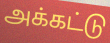
அக்கட்டு